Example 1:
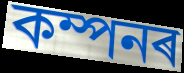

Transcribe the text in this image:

কম্পনৰ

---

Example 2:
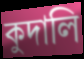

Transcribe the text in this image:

কুদালি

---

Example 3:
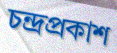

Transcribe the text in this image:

চন্দ্ৰপ্ৰকাশ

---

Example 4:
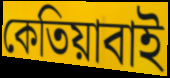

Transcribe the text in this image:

কেতিয়াবাই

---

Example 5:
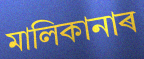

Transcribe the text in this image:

মালিকানাৰ